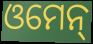
ଓମେନ୍